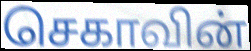
செகாவின்